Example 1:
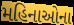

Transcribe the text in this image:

મહિનાઓના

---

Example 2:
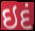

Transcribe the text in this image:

ઇદં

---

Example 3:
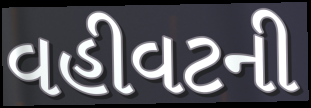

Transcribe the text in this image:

વહીવટની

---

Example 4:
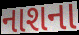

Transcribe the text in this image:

નાશના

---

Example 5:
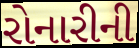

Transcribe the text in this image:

રોનારીની